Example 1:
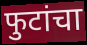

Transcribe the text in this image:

फुटांचा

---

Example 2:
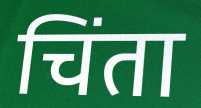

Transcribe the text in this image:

चिंता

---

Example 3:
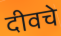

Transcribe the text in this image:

दीवचे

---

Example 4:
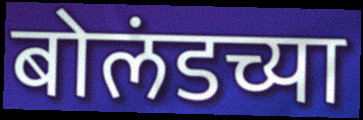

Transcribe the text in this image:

बोलंडच्या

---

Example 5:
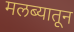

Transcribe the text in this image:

मलब्यातून